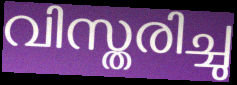
വിസ്തരിച്ചു